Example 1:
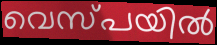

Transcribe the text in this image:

വെസ്പയിൽ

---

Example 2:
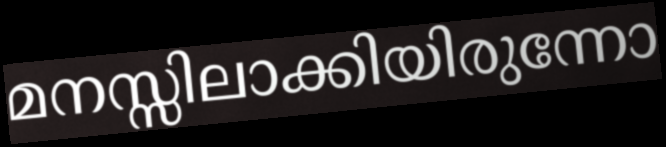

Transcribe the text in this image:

മനസ്സിലാക്കിയിരുന്നോ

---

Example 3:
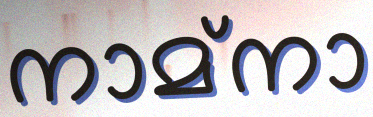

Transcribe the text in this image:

നാമ്നാ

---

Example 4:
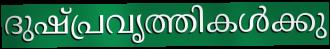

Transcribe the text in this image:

ദുഷ്പ്രവൃത്തികൾക്കു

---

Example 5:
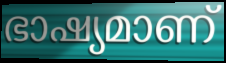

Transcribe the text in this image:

ഭാഷ്യമാണ്